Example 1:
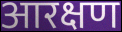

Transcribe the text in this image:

आरक्षण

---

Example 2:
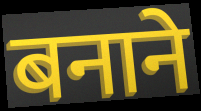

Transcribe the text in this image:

बनाने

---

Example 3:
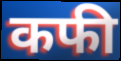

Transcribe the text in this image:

कफी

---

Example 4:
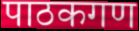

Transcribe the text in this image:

पाठकगण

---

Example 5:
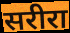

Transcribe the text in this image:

सरीरा